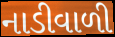
નાડીવાળી